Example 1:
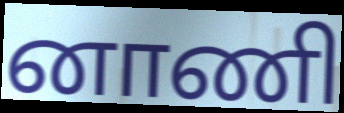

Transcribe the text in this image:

னாணி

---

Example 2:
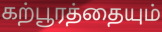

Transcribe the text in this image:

கற்பூரத்தையும்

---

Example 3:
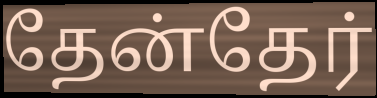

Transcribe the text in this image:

தேன்தேர்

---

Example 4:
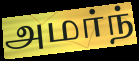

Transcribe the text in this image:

அமர்ந்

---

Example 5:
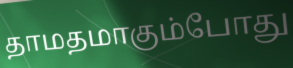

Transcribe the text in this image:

தாமதமாகும்போது